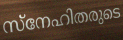
സ്നേഹിതരുടെ